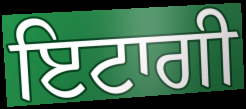
ਇਟਾਗੀ